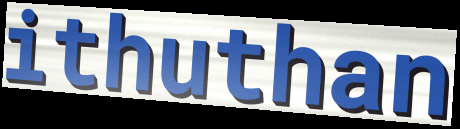
ithuthan